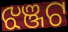
ଝଞ୍ଜଟ